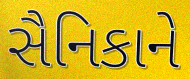
સૈનિકાને